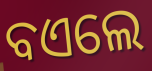
ବଏଲେ